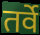
तर्वे